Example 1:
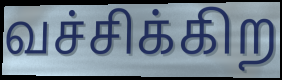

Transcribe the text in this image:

வச்சிக்கிற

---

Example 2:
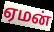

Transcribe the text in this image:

ஏமன்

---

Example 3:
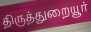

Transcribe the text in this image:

திருத்துறையூர்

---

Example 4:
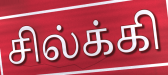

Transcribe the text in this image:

சில்க்கி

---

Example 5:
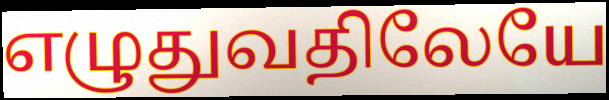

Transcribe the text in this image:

எழுதுவதிலேயே